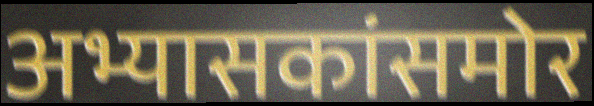
अभ्यासकांसमोर